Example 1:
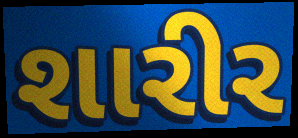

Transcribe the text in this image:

શારીર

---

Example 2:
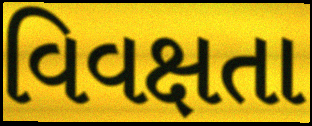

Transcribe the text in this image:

વિવક્ષતા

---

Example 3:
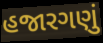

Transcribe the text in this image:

હજારગણું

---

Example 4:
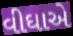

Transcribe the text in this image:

વીઘાએ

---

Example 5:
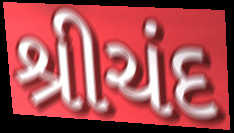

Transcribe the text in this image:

શ્રીચંદ